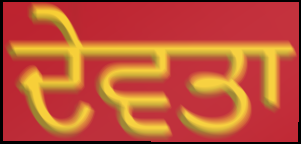
ਦੇਵਤਾ